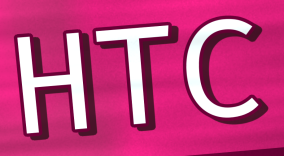
HTC